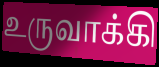
உருவாக்கி